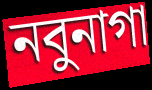
নবুনাগা